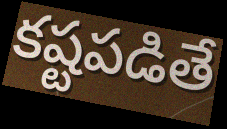
కష్టపడితే